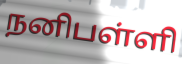
நனிபள்ளி